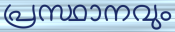
പ്രസ്ഥാനവും